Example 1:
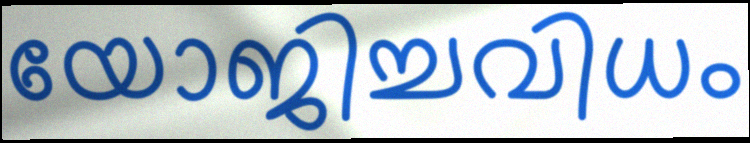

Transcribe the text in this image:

യോജിച്ചവിധം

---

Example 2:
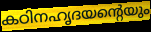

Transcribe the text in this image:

കഠിനഹൃദയന്റെയും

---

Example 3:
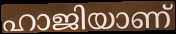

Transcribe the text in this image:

ഹാജിയാണ്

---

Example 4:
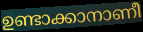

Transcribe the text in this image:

ഉണ്ടാക്കാനാണീ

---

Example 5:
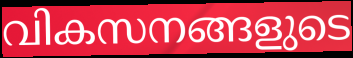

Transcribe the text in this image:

വികസനങ്ങളുടെ